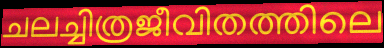
ചലച്ചിത്രജീവിതത്തിലെ